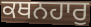
ਕਥਨਹਾਰੁ